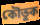
কৌতুক